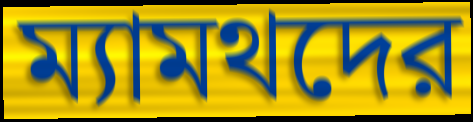
ম্যামথদের